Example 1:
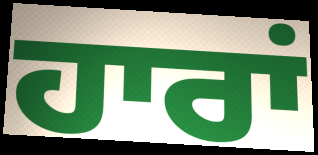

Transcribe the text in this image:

ਹਾਰਾਂ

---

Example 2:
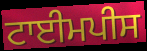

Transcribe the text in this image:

ਟਾਈਮਪੀਸ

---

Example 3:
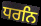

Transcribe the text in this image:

ਧਰਨਿ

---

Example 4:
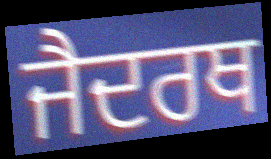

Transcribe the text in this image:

ਜੈਦਰਥ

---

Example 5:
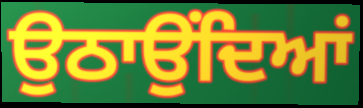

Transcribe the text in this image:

ਉਠਾਉਂਦਿਆਂ